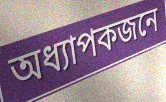
অধ্যাপকজনে